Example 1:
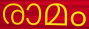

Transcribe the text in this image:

രാമം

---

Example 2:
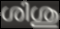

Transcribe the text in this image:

ശിശു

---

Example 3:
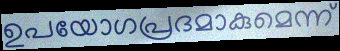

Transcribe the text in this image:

ഉപയോഗപ്രദമാകുമെന്ന്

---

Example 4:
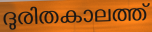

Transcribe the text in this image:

ദുരിതകാലത്ത്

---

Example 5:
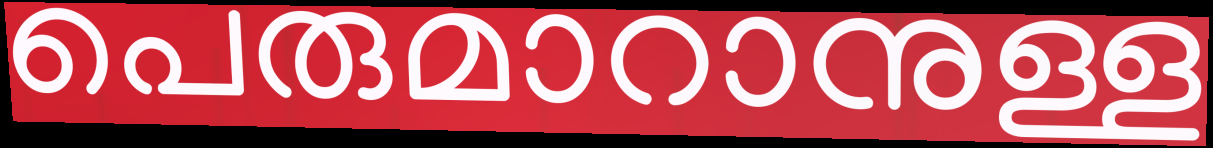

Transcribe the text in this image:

പെരുമാറാനുള്ള